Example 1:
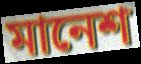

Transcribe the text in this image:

মানেশ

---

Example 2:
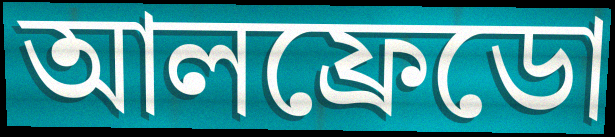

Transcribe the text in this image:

আলফ্রেডো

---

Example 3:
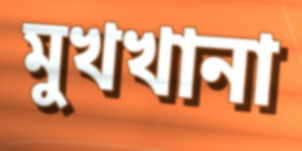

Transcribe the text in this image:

মুখখানা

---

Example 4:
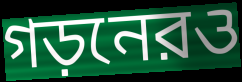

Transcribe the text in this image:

গড়নেরও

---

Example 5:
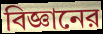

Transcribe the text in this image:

বিজ্ঞানের